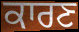
ਕਾਰਣ